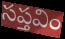
సప్తవిం